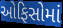
ઓફિસોમાં